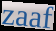
zaaf